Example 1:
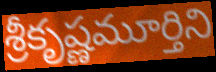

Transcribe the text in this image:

శ్రీకృష్ణమూర్తిని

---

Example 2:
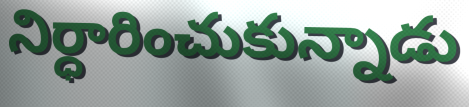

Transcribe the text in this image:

నిర్ధారించుకున్నాడు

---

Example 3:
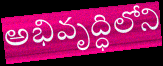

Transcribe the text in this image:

అభివృద్ధిలోని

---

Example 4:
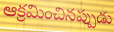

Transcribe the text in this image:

ఆక్రమించినప్పుడు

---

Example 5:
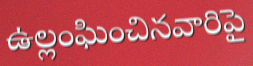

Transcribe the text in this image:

ఉల్లంఘించినవారిపై